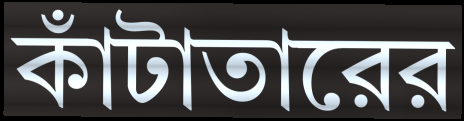
কাঁটাতারের